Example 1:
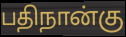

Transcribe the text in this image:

பதிநான்கு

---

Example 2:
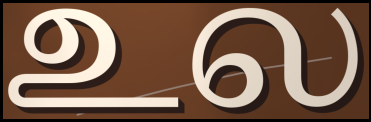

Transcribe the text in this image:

உல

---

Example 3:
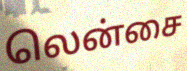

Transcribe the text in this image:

லென்சை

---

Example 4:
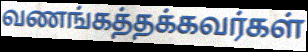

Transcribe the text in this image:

வணங்கத்தக்கவர்கள்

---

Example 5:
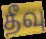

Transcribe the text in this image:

தீவு